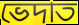
ভেদাত